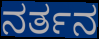
ನರ್ತನ